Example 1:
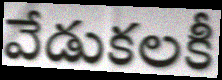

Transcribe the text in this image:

వేడుకలకీ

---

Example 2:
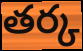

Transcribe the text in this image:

తర్క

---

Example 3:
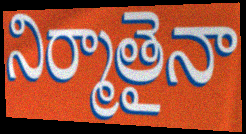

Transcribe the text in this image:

నిర్మాతైనా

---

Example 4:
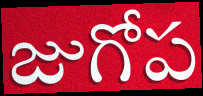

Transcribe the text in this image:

జుగోప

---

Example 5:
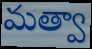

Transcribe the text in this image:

మత్వా